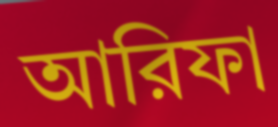
আরিফা